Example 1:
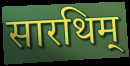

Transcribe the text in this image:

सारथिम्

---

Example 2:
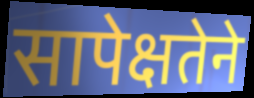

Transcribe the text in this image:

सापेक्षतेने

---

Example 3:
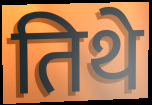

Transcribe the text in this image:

तिथे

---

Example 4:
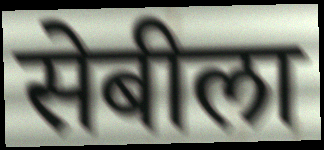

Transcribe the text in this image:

सेबीला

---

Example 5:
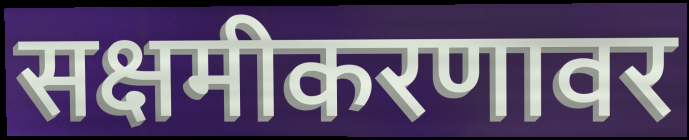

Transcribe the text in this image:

सक्षमीकरणावर